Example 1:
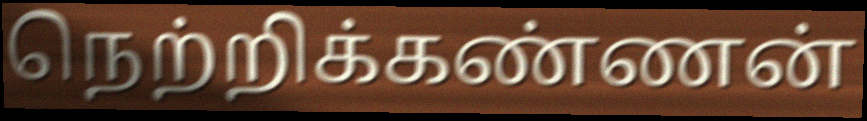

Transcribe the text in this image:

நெற்றிக்கண்ணன்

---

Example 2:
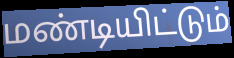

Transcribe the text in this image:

மண்டியிட்டும்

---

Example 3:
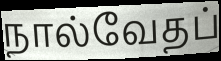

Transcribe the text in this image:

நால்வேதப்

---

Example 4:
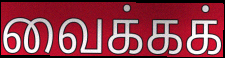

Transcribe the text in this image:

வைக்கக்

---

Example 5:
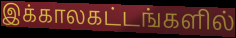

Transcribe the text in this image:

இக்காலகட்டங்களில்